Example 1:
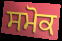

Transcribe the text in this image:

ਸਮੋਕ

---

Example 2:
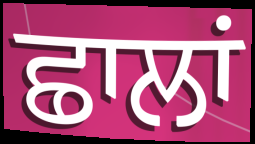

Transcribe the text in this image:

ਛਾਲਾਂ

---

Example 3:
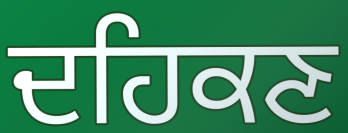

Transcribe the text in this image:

ਦਹਿਕਣ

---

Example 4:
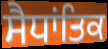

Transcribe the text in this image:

ਸੈਧਾਂਤਿਕ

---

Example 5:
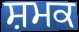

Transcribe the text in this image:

ਸ਼ਮਕ